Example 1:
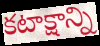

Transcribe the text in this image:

కటాక్షాన్ని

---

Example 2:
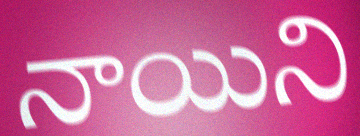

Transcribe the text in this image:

నాయిని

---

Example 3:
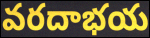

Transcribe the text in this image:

వరదాభయ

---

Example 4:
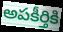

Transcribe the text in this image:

అపకీర్తికి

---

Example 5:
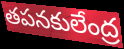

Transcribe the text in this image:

తపనకులేంద్ర